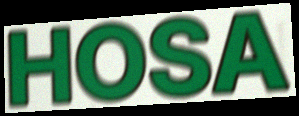
HOSA